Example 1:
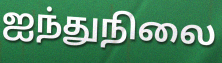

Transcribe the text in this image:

ஐந்துநிலை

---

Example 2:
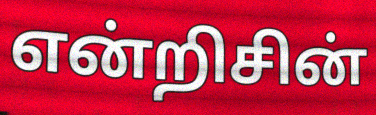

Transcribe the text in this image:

என்றிசின்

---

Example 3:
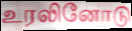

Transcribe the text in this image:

உரலினோடு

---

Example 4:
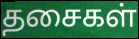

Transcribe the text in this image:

தசைகள்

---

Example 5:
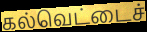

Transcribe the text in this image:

கல்வெட்டைச்